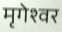
मृगेश्वर